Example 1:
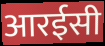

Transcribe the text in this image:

आरईसी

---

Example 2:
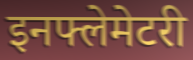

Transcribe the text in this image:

इनफ्लेमेटरी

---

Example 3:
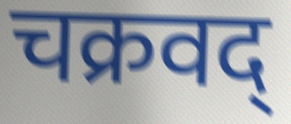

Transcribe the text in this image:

चक्रवद्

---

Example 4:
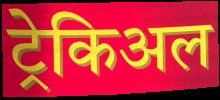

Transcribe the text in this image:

ट्रेकिअल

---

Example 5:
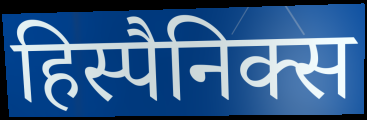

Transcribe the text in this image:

हिस्पैनिक्स